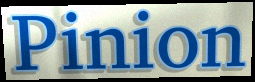
Pinion